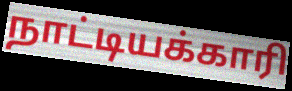
நாட்டியக்காரி